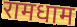
रामधाम